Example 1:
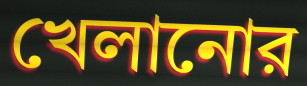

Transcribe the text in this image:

খেলানোর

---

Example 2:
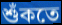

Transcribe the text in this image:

শুঁকতে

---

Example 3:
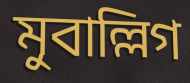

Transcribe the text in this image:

মুবাল্লিগ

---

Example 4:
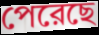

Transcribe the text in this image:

পেরেছে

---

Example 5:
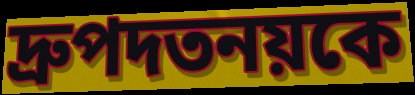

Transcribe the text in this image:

দ্রুপদতনয়কে